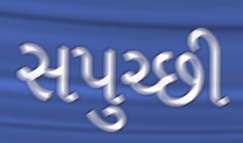
સપુચ્છી